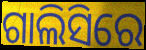
ଗାଲିସିରେ